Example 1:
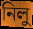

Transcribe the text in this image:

নিলু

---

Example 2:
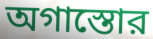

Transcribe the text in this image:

অগাস্তোর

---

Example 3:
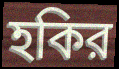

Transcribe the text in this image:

হকির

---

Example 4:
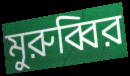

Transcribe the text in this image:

মুরুব্বির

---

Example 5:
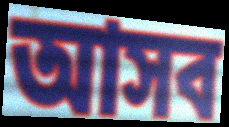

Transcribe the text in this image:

আসব